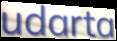
udarta